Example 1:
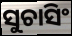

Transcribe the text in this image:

ସୁଚାସିଂ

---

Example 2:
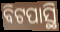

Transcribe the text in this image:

ବିଟପାସ୍ଥି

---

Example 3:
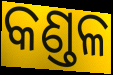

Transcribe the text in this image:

କଣ୍ଡଳ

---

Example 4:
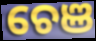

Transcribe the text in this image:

ଚେଞ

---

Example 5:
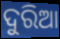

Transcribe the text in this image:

ଦୁରିଆ